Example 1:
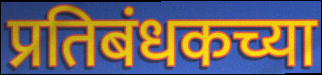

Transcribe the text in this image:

प्रतिबंधकच्या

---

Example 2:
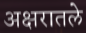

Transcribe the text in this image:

अक्षरातले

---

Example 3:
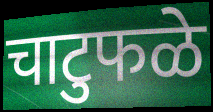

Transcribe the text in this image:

चाटुफळे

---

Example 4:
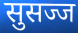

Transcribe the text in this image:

सुसज्ज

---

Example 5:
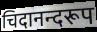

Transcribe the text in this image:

चिदानन्दरूप